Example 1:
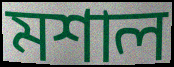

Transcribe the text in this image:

মশাল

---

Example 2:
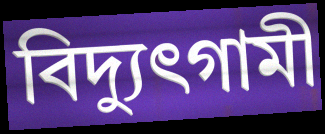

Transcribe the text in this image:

বিদ্যুৎগামী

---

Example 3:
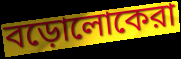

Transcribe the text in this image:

বড়োলোকেরা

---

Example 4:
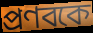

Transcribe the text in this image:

প্রণবকে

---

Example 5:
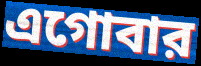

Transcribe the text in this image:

এগোবার